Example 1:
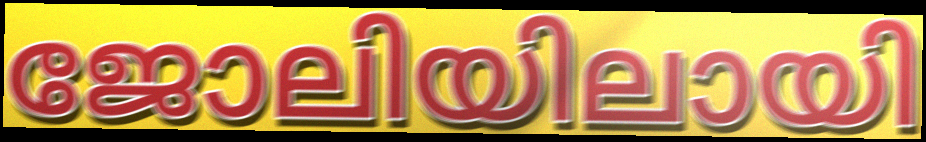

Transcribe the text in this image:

ജോലിയിലായി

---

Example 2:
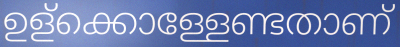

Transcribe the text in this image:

ഉള്ക്കൊള്ളേണ്ടതാണ്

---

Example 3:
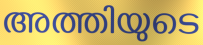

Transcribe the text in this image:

അത്തിയുടെ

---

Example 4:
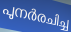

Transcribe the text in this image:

പുനർരചിച്ച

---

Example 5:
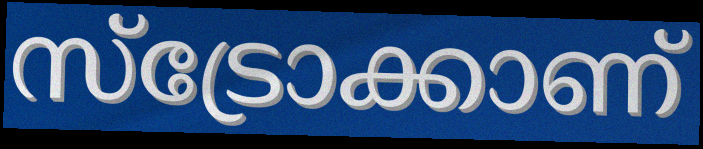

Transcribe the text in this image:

സ്ട്രോക്കാണ്